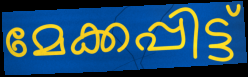
മേക്കപ്പിട്ട്